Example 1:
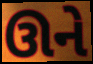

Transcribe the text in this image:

ઊને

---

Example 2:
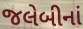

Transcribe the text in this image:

જલેબીનાં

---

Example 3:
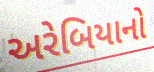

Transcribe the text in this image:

અરેબિયાનો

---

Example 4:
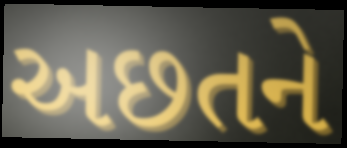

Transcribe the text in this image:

અછતને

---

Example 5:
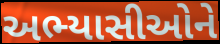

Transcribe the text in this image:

અભ્યાસીઓને